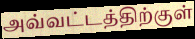
அவ்வட்டத்திற்குள்